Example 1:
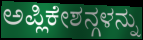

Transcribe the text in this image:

ಅಪ್ಲಿಕೇಶನ್ಗಳನ್ನು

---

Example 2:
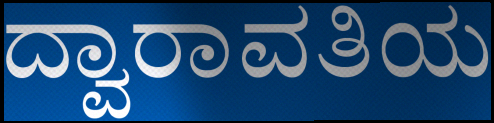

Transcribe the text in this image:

ದ್ವಾರಾವತಿಯ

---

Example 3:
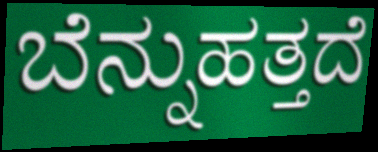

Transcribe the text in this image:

ಬೆನ್ನುಹತ್ತದೆ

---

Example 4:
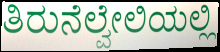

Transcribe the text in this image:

ತಿರುನೆಲ್ವೇಲಿಯಲ್ಲಿ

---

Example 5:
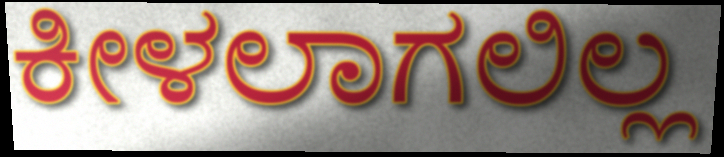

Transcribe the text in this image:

ಕೀಳಲಾಗಲಿಲ್ಲ